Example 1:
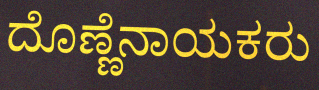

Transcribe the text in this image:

ದೊಣ್ಣೆನಾಯಕರು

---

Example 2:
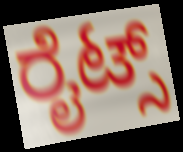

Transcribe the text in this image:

ರೈಟ್ಸ್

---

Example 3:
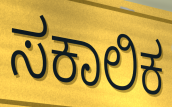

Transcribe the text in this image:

ಸಕಾಲಿಕ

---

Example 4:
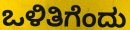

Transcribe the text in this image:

ಒಳಿತಿಗೆಂದು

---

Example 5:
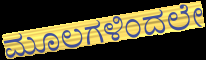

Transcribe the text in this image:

ಮೂಲಗಳಿಂದಲೇ